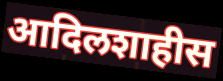
आदिलशाहीस